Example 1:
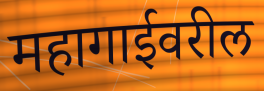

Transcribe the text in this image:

महागाईवरील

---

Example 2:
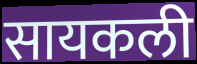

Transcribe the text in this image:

सायकली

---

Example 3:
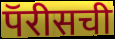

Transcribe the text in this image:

पॅरीसची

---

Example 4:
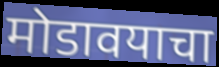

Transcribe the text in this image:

मोडावयाचा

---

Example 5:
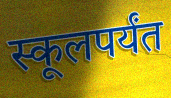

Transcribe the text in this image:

स्कूलपर्यंत